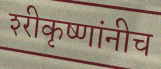
श्रीकृष्णांनीच